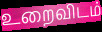
உறைவிடம்